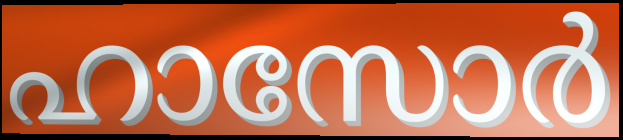
ഹാസോർ